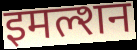
इमल्शन